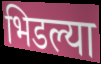
भिडल्या